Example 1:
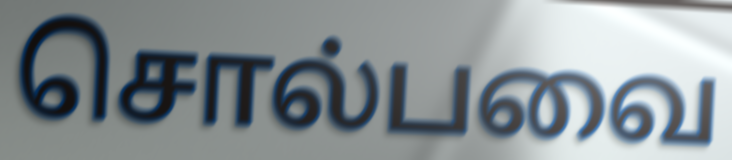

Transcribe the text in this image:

சொல்பவை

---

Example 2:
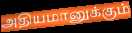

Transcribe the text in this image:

அதியமானுக்கும்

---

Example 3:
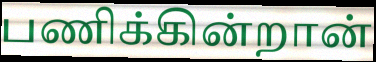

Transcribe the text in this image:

பணிக்கின்றான்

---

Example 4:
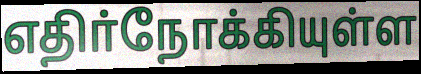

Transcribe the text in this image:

எதிர்நோக்கியுள்ள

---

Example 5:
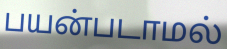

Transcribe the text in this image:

பயன்படாமல்